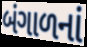
બંગાળનાં